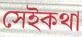
সেইকথা